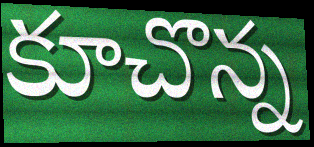
కూచొన్న